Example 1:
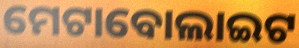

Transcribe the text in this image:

ମେଟାବୋଲାଇଟ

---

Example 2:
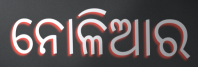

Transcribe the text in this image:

ନୋଳିଆର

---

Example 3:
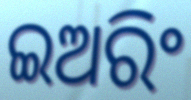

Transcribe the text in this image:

ଇଅରିଂ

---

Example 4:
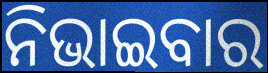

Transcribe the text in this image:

ନିଭାଇବାର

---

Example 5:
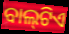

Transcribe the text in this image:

ବାଲ୍‍ଟିଏ